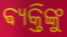
ଵ୍ୟକ୍ତିଙ୍କୁ